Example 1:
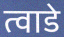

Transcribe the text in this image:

त्वाडे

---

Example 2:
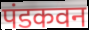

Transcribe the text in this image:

पंडकवन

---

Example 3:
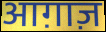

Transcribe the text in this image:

आग़ाज़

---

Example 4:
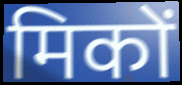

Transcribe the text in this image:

मिकों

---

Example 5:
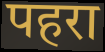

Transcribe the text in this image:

पहरा